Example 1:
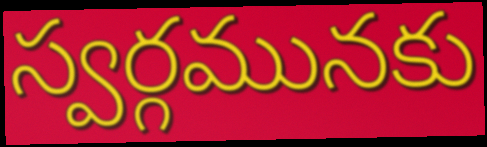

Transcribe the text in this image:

స్వర్గమునకు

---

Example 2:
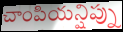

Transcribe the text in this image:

చాంపియన్షిప్ను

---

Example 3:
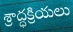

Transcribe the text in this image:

శ్రాద్ధక్రియలు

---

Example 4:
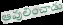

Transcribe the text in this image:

ఆవులించాడు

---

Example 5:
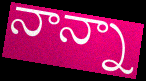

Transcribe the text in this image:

నాన్నా